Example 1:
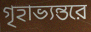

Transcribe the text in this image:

গৃহাভ্যন্তরে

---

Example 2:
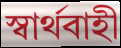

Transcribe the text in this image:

স্বার্থবাহী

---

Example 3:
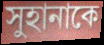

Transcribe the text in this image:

সুহানাকে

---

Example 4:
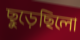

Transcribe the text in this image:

ছুড়েছিলো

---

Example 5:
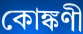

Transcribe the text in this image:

কোঙ্কণী